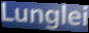
Lunglei